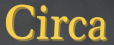
Circa